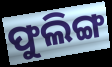
ଫୁଲିଙ୍ଗ